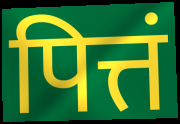
पित्तं